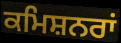
ਕਮਿਸ਼ਨਰਾਂ